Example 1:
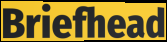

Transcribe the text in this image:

Briefhead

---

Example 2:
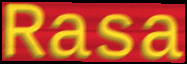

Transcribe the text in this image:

Rasa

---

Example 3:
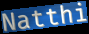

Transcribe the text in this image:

Natthi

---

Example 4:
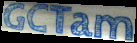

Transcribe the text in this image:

GCTam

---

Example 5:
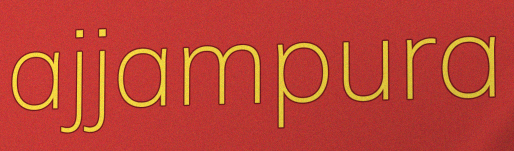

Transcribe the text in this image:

ajjampura